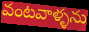
వంటవాళ్ళను